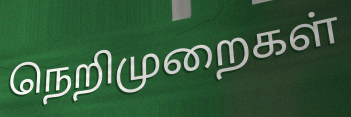
நெறிமுறைகள்